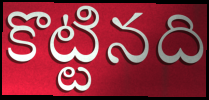
కొట్టినది